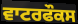
ਵਾਟਰਫੌਕਸ